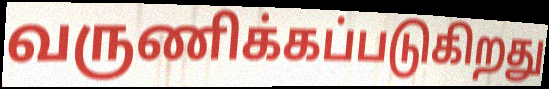
வருணிக்கப்படுகிறது